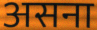
असना